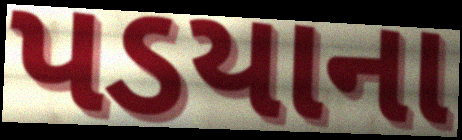
પડયાના